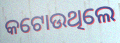
କଟୋଉଥିଲେ